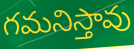
గమనిస్తావు